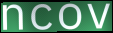
ncov